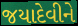
જયાદેવીને